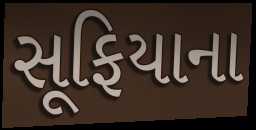
સૂફિયાના